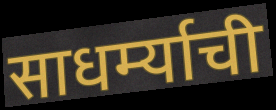
साधर्म्याची